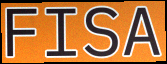
FISA